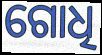
ଗୋଧି